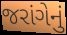
જરાંગેનું